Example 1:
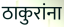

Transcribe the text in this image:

ठाकुरांना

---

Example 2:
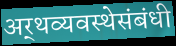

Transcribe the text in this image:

अर्थव्यवस्थेसंबंधी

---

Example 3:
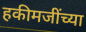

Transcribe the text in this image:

हकीमजींच्या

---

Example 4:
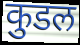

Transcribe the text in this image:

कुडल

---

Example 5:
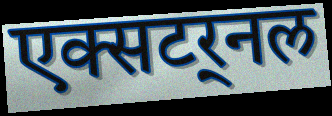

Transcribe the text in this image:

एक्सटर्नल